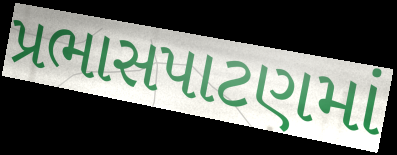
પ્રભાસપાટણમાં